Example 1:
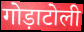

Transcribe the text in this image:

गोड़ाटोली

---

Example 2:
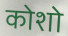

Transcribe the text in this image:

कोशो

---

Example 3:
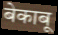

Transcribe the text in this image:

बेकाबू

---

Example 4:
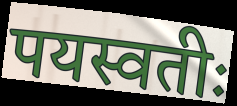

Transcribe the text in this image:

पयस्वतीः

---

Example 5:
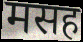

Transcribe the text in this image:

मसह